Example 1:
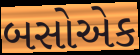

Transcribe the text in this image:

બસોએક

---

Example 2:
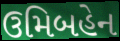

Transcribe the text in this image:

ઉમિબહેન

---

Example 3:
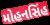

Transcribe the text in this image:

મોહનસિંહ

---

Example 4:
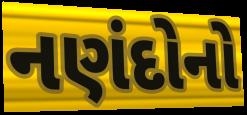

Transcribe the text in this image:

નણંદોનો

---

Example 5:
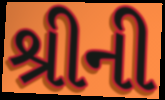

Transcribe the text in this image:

શ્રીની